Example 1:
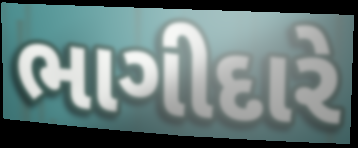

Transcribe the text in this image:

ભાગીદારે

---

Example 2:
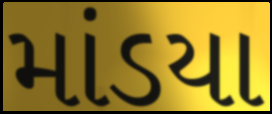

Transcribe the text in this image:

માંડયા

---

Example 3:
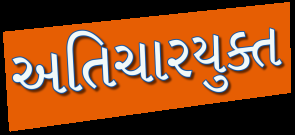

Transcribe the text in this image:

અતિચારયુક્ત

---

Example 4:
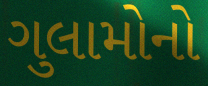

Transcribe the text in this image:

ગુલામોનો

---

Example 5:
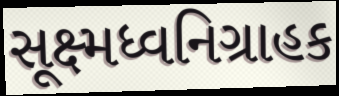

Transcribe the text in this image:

સૂક્ષ્મધ્વનિગ્રાહક